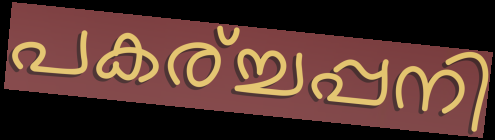
പകര്ച്ചപ്പനി